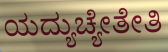
ಯದ್ಯುಚ್ಯೇತೇತಿ